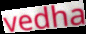
vedha